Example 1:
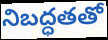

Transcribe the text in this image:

నిబద్ధతతో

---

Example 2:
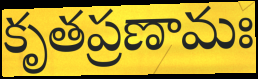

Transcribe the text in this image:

కృతప్రణామః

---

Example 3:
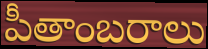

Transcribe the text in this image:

పీతాంబరాలు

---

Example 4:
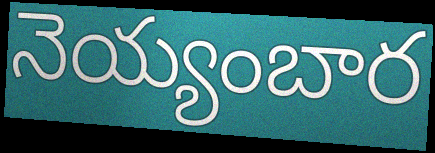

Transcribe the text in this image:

నెయ్యంబార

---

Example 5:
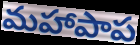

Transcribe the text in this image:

మహాపాప